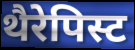
थैरेपिस्ट